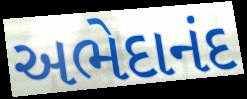
અભેદાનંદ